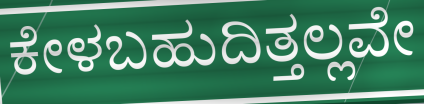
ಕೇಳಬಹುದಿತ್ತಲ್ಲವೇ